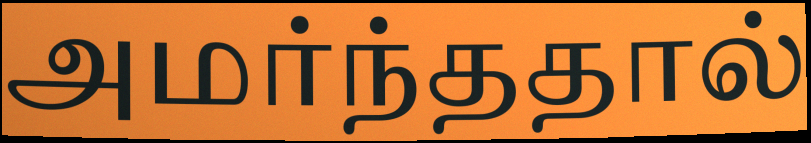
அமர்ந்ததால்